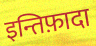
इन्तिफ़ादा